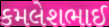
કમલેશભાઈ